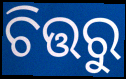
ଚିତ୍ତରୁ